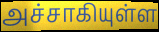
அச்சாகியுள்ள